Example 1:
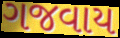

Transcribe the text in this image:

ગજવાય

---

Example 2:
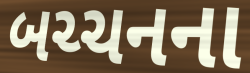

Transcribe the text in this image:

બચ્ચનના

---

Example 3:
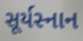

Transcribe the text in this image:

સૂર્યસ્નાન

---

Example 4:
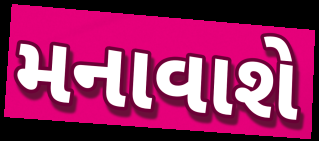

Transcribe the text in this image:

મનાવાશે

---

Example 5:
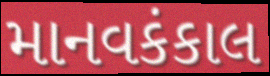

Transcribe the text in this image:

માનવકંકાલ